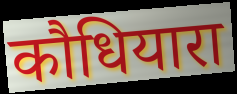
कौधियारा